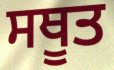
ਸਥੂਤ